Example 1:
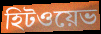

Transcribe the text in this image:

হিটওয়েভ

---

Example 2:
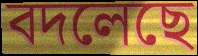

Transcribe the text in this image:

বদলেছে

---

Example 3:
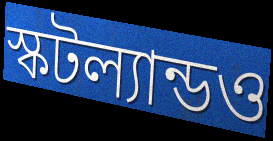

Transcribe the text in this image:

স্কটল্যান্ডও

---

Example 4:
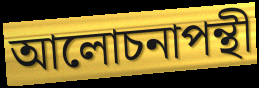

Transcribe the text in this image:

আলোচনাপন্থী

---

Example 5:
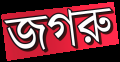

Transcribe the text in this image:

জগরু